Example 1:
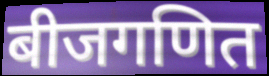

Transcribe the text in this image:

बीजगणित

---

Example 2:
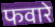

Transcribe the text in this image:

फवारे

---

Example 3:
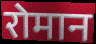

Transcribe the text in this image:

रोमान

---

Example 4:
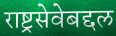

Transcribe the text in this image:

राष्ट्रसेवेबद्दल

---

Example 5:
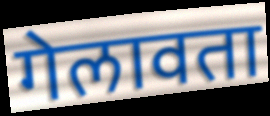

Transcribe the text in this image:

गेलावता